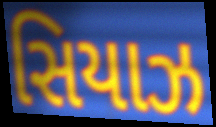
સિયાઝ